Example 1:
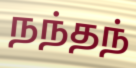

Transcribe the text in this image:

நந்தந்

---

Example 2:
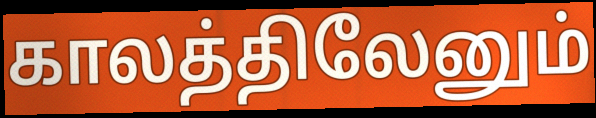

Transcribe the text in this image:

காலத்திலேனும்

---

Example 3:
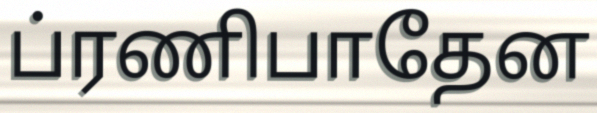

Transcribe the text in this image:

ப்ரணிபாதேன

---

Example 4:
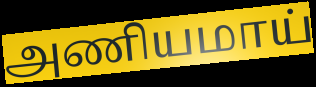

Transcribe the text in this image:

அணியமாய்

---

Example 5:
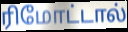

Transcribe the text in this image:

ரிமோட்டால்